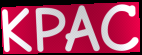
KPAC